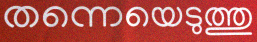
തന്നെയെടുത്തു